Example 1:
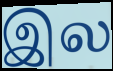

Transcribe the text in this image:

இல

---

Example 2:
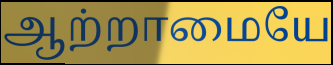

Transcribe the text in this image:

ஆற்றாமையே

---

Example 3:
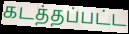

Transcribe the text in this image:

கடத்தப்பட்ட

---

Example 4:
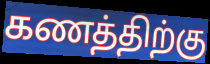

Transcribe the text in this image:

கணத்திற்கு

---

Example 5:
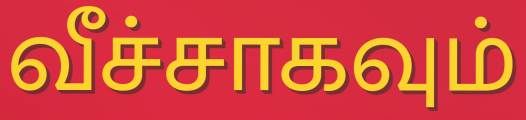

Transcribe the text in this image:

வீச்சாகவும்